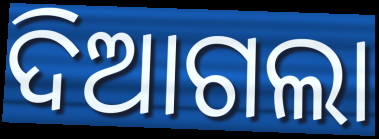
ଦିଆଗଲା